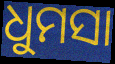
ଧୁମସା